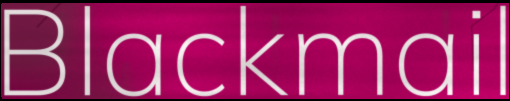
Blackmail